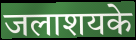
जलाशयके